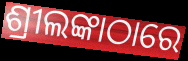
ଶ୍ରୀଲଙ୍କାଠାରେ